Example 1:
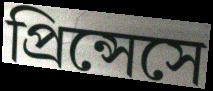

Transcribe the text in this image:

প্রিন্সেসে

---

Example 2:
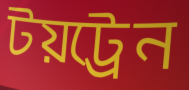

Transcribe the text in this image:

টয়ট্রেন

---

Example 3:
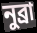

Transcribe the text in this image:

নুব্রা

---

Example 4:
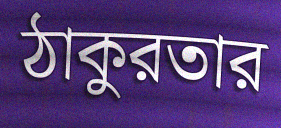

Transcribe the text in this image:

ঠাকুরতার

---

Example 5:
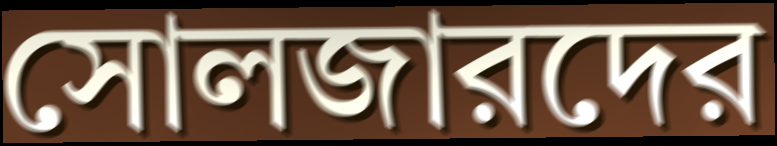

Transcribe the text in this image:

সোলজারদের